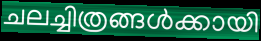
ചലച്ചിത്രങ്ങൾക്കായി